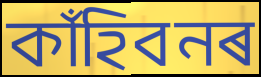
কাঁহিবনৰ